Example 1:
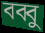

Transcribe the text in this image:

বব্বু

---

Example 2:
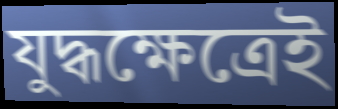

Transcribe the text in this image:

যুদ্ধক্ষেত্রেই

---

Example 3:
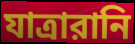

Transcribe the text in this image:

যাত্রারানি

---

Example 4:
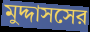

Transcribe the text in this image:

মুদ্দাসসের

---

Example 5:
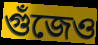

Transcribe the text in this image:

গুঁজেও